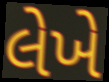
લેખે